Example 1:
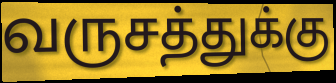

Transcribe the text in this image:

வருசத்துக்கு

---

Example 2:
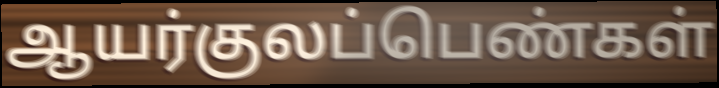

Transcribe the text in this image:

ஆயர்குலப்பெண்கள்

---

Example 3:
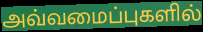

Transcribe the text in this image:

அவ்வமைப்புகளில்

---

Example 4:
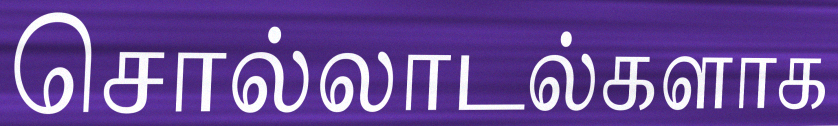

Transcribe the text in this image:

சொல்லாடல்களாக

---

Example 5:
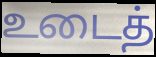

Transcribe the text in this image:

உடைத்